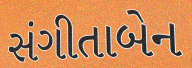
સંગીતાબેન